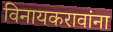
विनायकरावांना